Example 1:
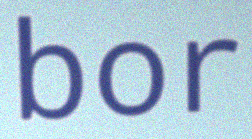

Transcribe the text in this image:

bor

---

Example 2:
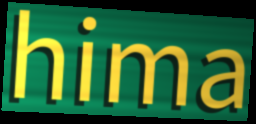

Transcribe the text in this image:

hima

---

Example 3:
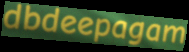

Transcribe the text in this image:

dbdeepagam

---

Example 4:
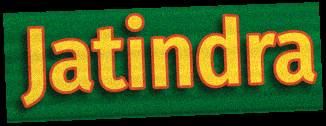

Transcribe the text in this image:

Jatindra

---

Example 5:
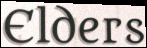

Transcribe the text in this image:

Elders